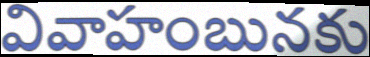
వివాహంబునకు